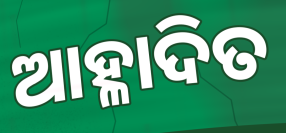
ଆହ୍ଳାଦିତ